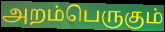
அறம்பெருகும்